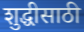
शुद्धीसाठी